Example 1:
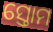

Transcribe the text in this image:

ସ୍ତୋମ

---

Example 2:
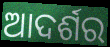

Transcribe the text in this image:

ଆଦର୍ଶର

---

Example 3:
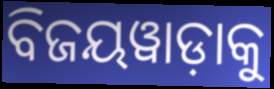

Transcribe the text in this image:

ବିଜୟୱାଡ଼ାକୁ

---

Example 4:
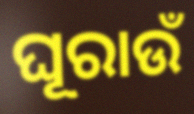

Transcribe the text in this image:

ଘୂରାଉଁ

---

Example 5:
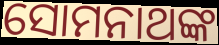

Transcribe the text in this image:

ସୋମନାଥଙ୍କ